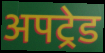
अपट्रेड